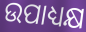
ଉପାଧ୍ୟକ୍ଷ